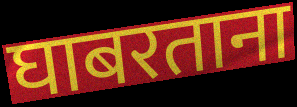
घाबरताना